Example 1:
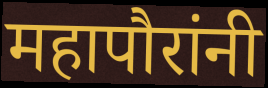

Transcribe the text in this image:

महापौरांनी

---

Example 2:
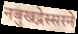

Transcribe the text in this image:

नबुखद्नेस्सरने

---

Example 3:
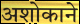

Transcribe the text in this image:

अशोकाने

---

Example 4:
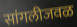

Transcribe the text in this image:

सांगलीजवळ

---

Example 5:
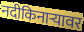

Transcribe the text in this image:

नदीकिनाऱ्यावर